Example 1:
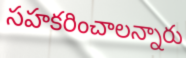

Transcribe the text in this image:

సహకరించాలన్నారు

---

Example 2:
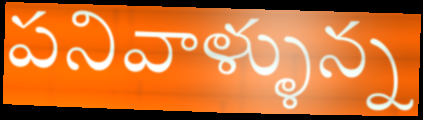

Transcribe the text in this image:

పనివాళ్ళున్న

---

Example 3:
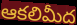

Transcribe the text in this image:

ఆకలిమీద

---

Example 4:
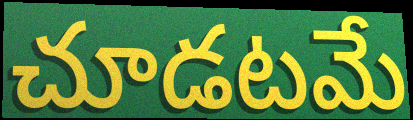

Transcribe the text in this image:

చూడటమే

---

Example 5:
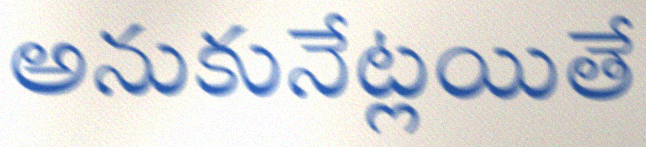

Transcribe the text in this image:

అనుకునేట్లయితే